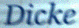
Dicke